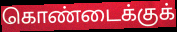
கொண்டைக்குக்